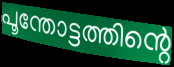
പൂന്തോട്ടത്തിന്റെ